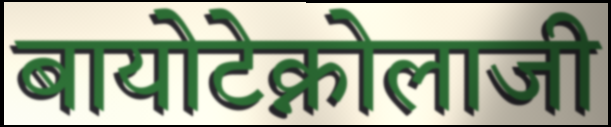
बायोटेक्नोलाजी